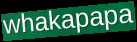
whakapapa